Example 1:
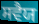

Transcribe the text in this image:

ਸਵੈਯ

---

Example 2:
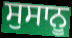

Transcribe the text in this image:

ਸੁਸਾਨੂ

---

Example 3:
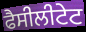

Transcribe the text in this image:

ਫੈਸੀਲੀਟੇਟ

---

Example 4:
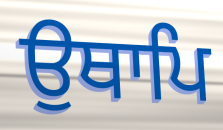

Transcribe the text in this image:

ਉਥਾਪਿ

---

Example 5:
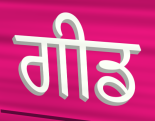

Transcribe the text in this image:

ਗੀਡ